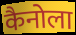
कैनोला